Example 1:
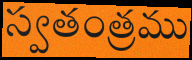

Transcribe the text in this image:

స్వతంత్రము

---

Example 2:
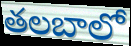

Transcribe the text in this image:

తలబాలో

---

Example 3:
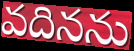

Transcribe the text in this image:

వదినను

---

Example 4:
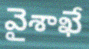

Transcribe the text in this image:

వైశాఖే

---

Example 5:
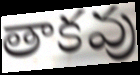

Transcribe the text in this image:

తాకవు